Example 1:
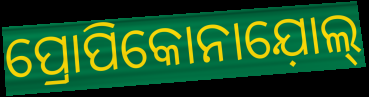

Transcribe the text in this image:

ପ୍ରୋପିକୋନାଯ଼ୋଲ୍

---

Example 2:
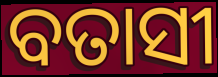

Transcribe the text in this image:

ବତାସୀ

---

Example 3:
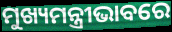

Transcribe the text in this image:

ମୁଖ୍ୟମନ୍ତ୍ରୀଭାବରେ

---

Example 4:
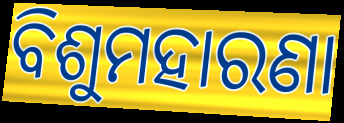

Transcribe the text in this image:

ବିଶୁମହାରଣା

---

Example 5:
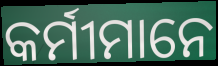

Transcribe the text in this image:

କର୍ମୀମାନେ